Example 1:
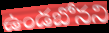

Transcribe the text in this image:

ఉండబోనని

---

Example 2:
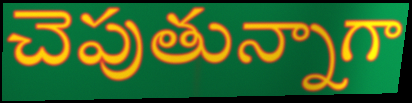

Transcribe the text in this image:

చెపుతున్నాగా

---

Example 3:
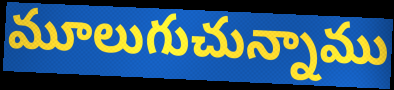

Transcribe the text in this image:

మూలుగుచున్నాము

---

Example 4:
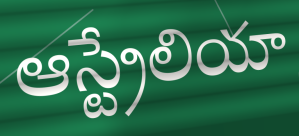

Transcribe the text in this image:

ఆస్ట్రేలియా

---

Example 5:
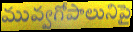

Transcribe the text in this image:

మువ్వగోపాలునిపై